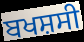
ਬਖਸ਼ਸੀ